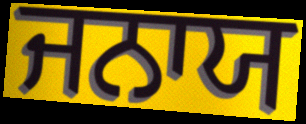
ਜਨਾਯ